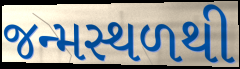
જન્મસ્થળથી